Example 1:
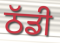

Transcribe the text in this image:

ਠੱਡੀ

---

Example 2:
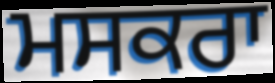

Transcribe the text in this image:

ਮਸਕਰਾ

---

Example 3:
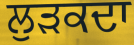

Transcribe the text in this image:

ਲੁੜਕਦਾ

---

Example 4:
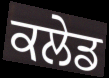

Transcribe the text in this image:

ਕਲੇਡ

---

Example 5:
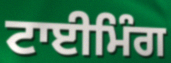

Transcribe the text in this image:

ਟਾਈਮਿੰਗ